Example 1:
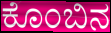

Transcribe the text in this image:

ಕೊಂಬಿನ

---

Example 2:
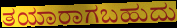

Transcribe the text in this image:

ತಯಾರಾಗಬಹುದು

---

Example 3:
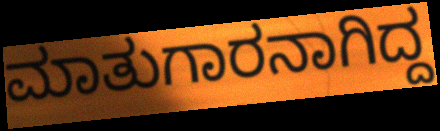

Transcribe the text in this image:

ಮಾತುಗಾರನಾಗಿದ್ದ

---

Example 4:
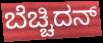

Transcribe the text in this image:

ಬೆಚ್ಚಿದನ್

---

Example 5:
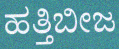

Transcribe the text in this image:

ಹತ್ತಿಬೀಜ